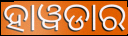
ହାୱଡାର